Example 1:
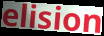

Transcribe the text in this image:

elision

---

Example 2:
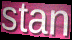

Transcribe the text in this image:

stan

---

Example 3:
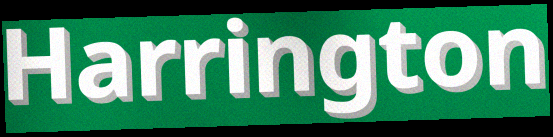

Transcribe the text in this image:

Harrington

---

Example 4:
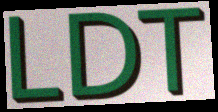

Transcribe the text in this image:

LDT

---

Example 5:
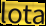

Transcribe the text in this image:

lota